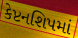
કેપ્ટનશિપમાં